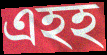
এহহ